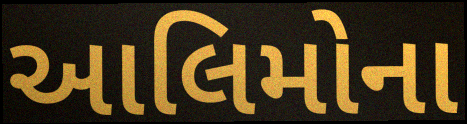
આલિમોના